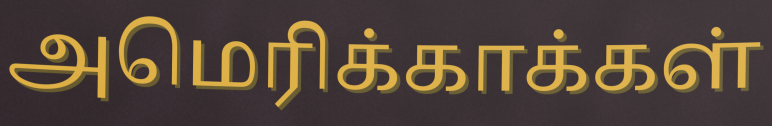
அமெரிக்காக்கள்